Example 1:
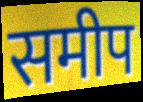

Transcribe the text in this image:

समीप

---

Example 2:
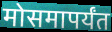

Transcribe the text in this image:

मोसमापर्यंत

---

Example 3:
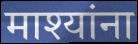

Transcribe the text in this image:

माश्यांना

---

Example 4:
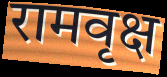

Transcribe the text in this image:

रामवृक्ष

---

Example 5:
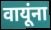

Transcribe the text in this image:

वायूंना